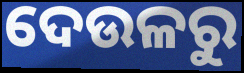
ଦେଉଳରୁ